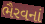
ભૈરવનાં